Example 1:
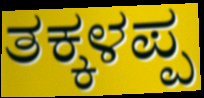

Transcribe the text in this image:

ತಕ್ಕಳಪ್ಪ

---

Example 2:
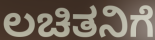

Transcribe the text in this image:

ಲಚಿತನಿಗೆ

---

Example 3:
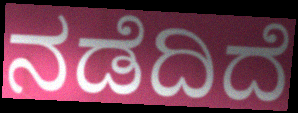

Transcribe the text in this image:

ನಡೆದಿದೆ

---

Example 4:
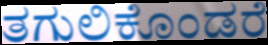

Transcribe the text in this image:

ತಗುಲಿಕೊಂಡರೆ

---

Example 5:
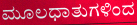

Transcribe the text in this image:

ಮೂಲಧಾತುಗಳಿಂದ